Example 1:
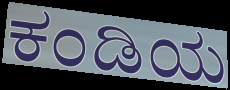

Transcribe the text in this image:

ಕಂಡಿಯ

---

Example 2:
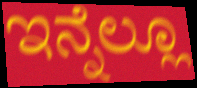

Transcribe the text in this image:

ಇನ್ನೆಲ್ಲೂ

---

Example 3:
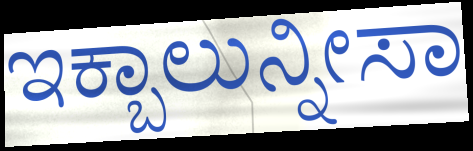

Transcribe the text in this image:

ಇಕ್ಬಾಲುನ್ನೀಸಾ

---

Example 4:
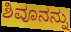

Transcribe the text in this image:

ಶಿವೂನನ್ನು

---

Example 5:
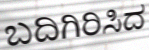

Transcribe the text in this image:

ಬದಿಗಿರಿಸಿದ